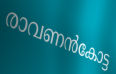
രാവണൻകോട്ട